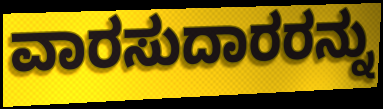
ವಾರಸುದಾರರನ್ನು